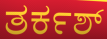
ತರ್ಕಶ್